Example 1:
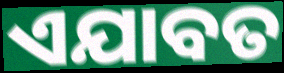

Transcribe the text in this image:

ଏଯାବତ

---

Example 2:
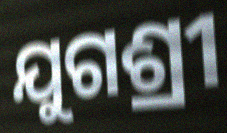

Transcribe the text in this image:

ଯୁଗଶ୍ରୀ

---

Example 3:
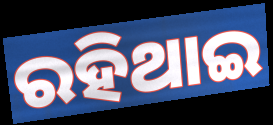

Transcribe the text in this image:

ରହିଥାଇ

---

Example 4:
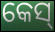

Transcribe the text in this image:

କେସ୍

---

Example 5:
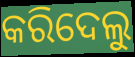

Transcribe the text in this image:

କରିଦେଲୁ